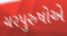
ચરપુરુષોએ